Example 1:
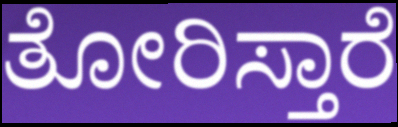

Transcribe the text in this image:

ತೋರಿಸ್ತಾರೆ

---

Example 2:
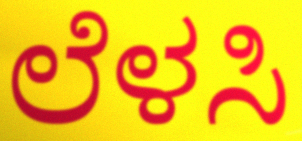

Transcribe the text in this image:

ಲೆಳಸಿ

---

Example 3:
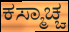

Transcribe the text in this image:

ಕಸ್ಮಾಚ್ಚ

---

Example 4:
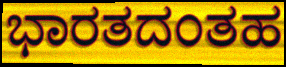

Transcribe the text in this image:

ಭಾರತದಂತಹ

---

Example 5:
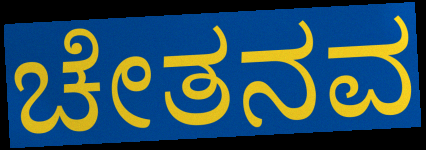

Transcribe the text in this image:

ಚೇತನವ